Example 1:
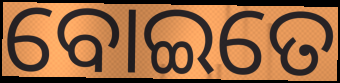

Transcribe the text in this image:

ବୋଇତେ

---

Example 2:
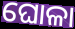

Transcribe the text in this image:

ଘୋଳା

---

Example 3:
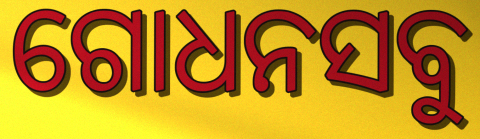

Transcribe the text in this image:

ଗୋଧନସବୁ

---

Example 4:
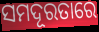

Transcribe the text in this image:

ସମଦୂରତାରେ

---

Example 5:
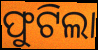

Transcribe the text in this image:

ଫୁଟିଲା